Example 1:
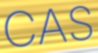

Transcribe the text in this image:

CAS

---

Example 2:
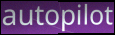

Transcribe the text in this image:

autopilot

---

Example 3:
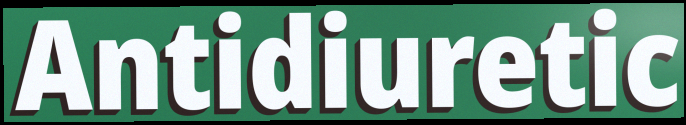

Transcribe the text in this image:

Antidiuretic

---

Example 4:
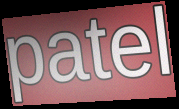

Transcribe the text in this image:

patel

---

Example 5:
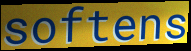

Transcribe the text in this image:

softens